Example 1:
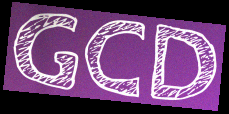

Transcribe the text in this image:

GCD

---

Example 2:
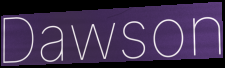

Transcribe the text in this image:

Dawson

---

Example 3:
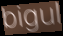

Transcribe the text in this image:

bigul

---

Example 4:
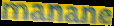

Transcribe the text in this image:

manane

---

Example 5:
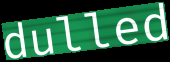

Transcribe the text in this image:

dulled